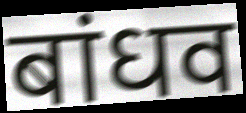
बांधव